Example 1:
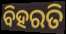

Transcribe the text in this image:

ବିହରତି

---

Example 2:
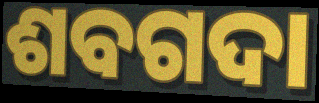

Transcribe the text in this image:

ଶବଗଦା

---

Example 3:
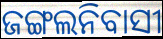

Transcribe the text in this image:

ଜଙ୍ଗଲନିବାସୀ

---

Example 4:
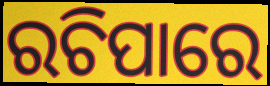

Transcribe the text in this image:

ରଚିପାରେ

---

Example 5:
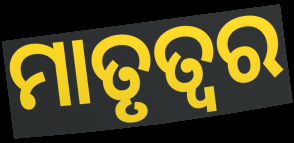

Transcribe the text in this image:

ମାତୃତ୍ୱର